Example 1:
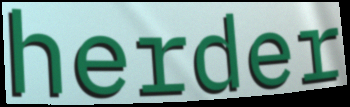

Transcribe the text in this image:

herder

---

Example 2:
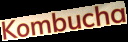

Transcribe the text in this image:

Kombucha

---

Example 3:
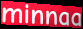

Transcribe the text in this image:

minnaa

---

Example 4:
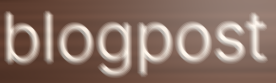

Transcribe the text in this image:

blogpost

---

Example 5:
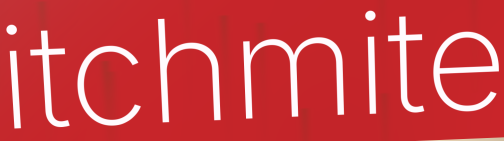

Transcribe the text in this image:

itchmite